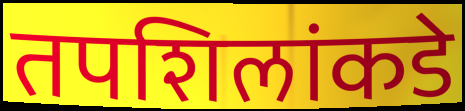
तपशिलांकडे